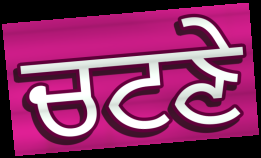
ਚਟਣੇ